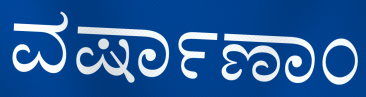
ವರ್ಷಾಣಾಂ